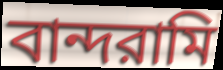
বান্দরামি